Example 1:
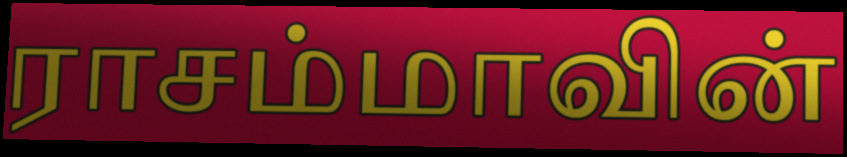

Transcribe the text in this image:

ராசம்மாவின்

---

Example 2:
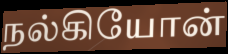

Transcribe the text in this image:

நல்கியோன்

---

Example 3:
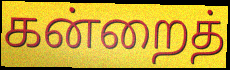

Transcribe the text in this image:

கன்றைத்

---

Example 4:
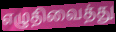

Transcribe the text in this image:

எழுதிவைத்து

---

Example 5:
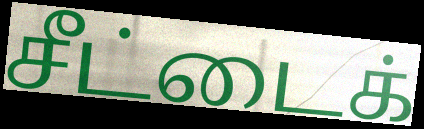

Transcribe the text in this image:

சீட்டைக்